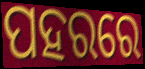
ପହରରେ